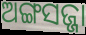
ଅଙ୍ଗସଜ୍ଜା